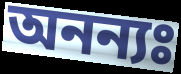
অনন্যঃ